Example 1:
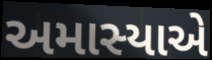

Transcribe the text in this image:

અમાસ્યાએ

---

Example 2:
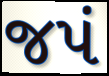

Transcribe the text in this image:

જપં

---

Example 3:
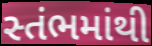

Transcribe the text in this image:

સ્તંભમાંથી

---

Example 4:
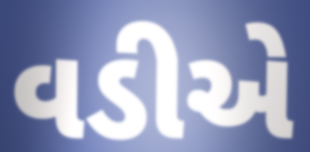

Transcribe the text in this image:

વડીએ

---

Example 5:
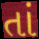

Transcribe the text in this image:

તાં